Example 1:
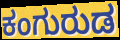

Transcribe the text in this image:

ಕಂಗುರುಡ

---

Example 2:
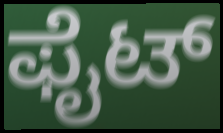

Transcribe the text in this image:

ಫೈಟ್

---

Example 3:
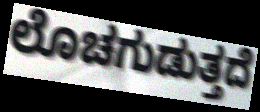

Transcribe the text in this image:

ಲೊಚಗುಡುತ್ತದೆ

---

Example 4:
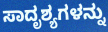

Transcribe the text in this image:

ಸಾದೃಶ್ಯಗಳನ್ನು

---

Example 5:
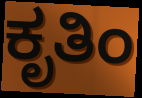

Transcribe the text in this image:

ಕೃತಿಂ